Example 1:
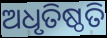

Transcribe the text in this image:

ଅଧୃତିଷ୍ଠତି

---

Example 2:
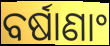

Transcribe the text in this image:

ବର୍ଷାଣାଂ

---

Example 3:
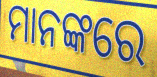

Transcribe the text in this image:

ମାନଙ୍କରେ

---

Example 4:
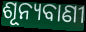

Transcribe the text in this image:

ଶୂନ୍ୟବାଣୀ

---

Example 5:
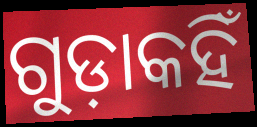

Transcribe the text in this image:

ଗୁଡ଼ାକହିଁ